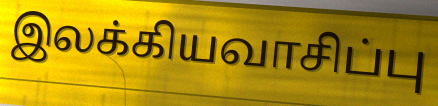
இலக்கியவாசிப்பு